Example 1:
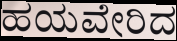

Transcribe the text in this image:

ಹಯವೇರಿದ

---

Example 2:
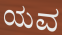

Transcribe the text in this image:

ಯವ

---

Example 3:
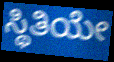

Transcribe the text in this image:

ಸ್ಥಿತಿಯೇ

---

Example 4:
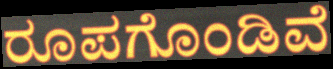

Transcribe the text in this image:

ರೂಪಗೊಂಡಿವೆ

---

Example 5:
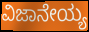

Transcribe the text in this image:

ವಿಜಾನೇಯ್ಯ